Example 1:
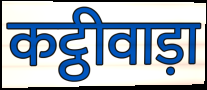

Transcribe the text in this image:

कट्ठीवाड़ा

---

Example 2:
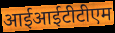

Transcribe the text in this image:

आईआईटीटीएम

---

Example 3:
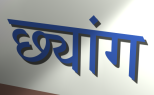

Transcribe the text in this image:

छ्यांग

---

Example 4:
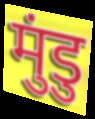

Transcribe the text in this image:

मुंडु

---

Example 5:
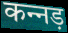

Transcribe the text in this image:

कन्‍नड़